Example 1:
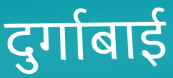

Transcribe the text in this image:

दुर्गाबाई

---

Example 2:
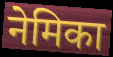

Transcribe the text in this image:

नेमिका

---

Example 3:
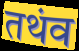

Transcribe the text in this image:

तथंव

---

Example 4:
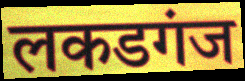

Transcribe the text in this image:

लकडगंज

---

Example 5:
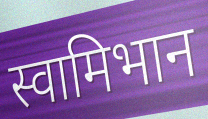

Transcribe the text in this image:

स्वामिभान